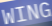
WING